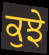
ਕੁਝੇ